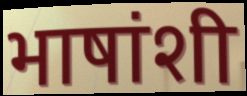
भाषांशी